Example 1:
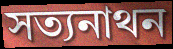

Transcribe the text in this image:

সত্যনাথন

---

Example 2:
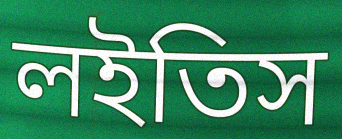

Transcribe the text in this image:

লইতিস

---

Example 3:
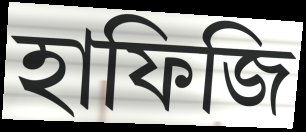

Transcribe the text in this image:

হাফিজি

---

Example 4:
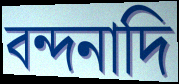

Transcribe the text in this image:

বন্দনাদি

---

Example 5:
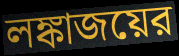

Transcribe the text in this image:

লঙ্কাজয়ের